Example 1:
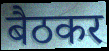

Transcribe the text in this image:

बैठकर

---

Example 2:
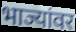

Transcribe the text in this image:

भाज्यांवर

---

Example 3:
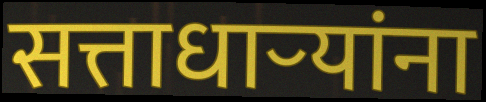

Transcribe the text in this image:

सत्ताधाऱ्यांना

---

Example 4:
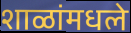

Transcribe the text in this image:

शाळांमधले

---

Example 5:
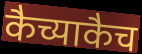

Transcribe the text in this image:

कैच्याकैच